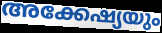
അക്കേഷ്യയും